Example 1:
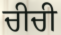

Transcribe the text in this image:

ਚੀਚੀ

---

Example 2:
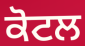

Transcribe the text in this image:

ਕੋਟਲ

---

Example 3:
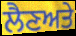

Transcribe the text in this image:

ਲੈਣਅਤੇ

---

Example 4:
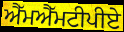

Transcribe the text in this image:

ਐੱਮਐੱਮਟੀਪੀਏ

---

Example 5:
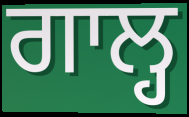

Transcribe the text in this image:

ਗਾਲ੍ਹ